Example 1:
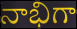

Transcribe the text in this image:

నాభిగా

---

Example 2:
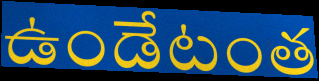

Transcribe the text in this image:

ఉండేటంత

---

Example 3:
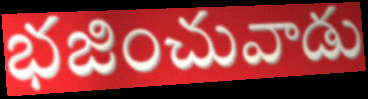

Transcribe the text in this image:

భజించువాడు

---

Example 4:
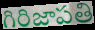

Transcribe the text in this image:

గిరిజాపతి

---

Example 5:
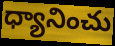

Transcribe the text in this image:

ధ్యానించు